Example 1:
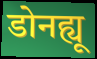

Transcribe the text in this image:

डोनह्यू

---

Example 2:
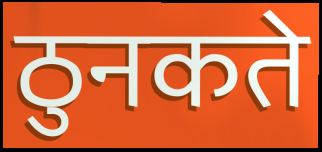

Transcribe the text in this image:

ठुनकते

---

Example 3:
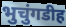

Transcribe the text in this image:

भुचुंगडीह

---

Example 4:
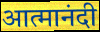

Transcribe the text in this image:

आत्मानंदी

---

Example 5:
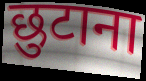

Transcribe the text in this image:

छुटाना